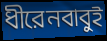
ধীরেনবাবুই